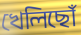
খেলিছোঁ